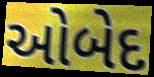
ઓબેદ